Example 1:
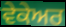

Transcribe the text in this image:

ਵੇਕੇਅਰ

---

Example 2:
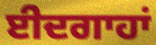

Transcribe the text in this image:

ਈਦਗਾਹਾਂ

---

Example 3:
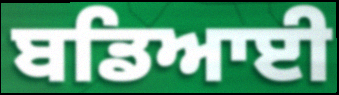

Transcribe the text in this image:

ਬਡਿਆਈ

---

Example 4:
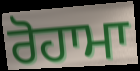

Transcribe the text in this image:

ਰੋਹਾਮਾ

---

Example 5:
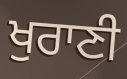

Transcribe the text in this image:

ਖੁਰਾਣੀ